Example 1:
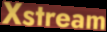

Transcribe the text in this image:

Xstream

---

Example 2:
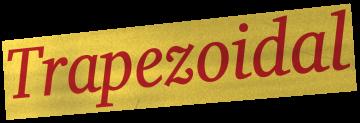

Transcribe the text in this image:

Trapezoidal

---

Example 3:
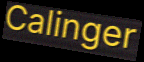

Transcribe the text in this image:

Calinger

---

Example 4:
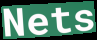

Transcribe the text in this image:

Nets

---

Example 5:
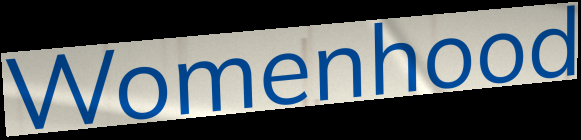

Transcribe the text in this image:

Womenhood